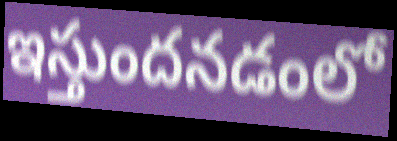
ఇస్తుందనడంలో